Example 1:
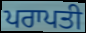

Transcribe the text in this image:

ਪਰਾਪਤੀ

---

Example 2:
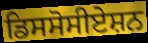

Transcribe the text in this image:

ਡਿਸਸੋਸੀਏਸ਼ਨ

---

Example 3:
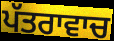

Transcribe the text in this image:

ਪੱਤਰਾਵਾਚ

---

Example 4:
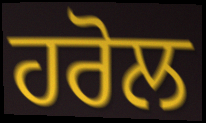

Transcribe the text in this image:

ਹਰੋਲ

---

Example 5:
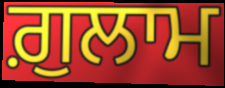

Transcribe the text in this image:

ਗ਼ੁਲਾਮ